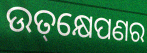
ଉତ୍‌କ୍ଷେପଣର